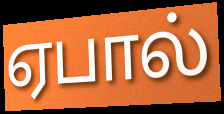
ஏபால்